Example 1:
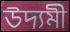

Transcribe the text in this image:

উদ্যমী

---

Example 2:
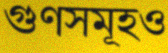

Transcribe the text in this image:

গুণসমূহও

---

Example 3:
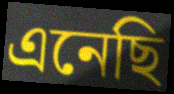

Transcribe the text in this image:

এনেছি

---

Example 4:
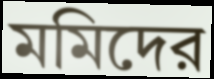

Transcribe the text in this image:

মমিদের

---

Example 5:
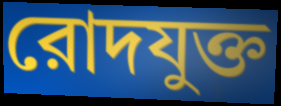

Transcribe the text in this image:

রোদযুক্ত